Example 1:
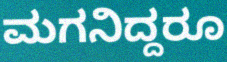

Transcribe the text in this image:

ಮಗನಿದ್ದರೂ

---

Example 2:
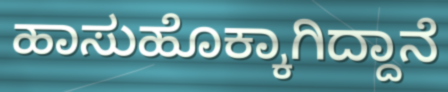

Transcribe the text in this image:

ಹಾಸುಹೊಕ್ಕಾಗಿದ್ದಾನೆ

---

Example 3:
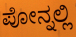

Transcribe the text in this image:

ಪೋನ್ನಲ್ಲಿ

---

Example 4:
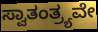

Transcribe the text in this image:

ಸ್ವಾತಂತ್ರ್ಯವೇ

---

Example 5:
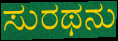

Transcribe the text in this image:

ಸುರಥನು